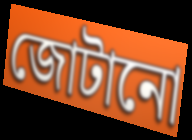
জোটানো